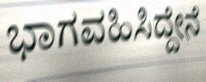
ಭಾಗವಹಿಸಿದ್ದೇನೆ